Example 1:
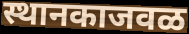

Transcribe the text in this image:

स्थानकाजवळ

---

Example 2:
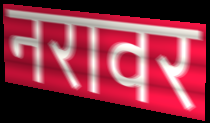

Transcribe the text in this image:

नरावर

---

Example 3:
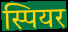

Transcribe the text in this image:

स्पियर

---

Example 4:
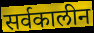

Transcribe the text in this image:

सर्वकालीन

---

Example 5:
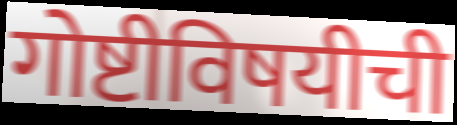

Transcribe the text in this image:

गोष्टीविषयीची